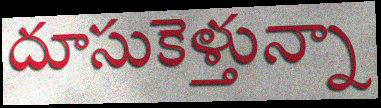
దూసుకెళ్తున్నా